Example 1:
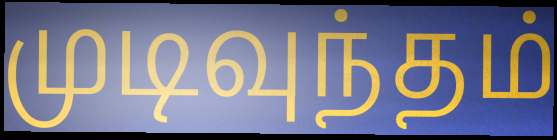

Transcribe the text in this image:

முடிவுந்தம்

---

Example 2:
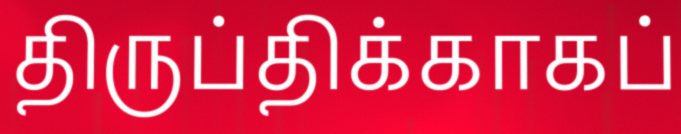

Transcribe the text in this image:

திருப்திக்காகப்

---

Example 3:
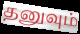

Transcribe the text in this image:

தனுவும்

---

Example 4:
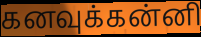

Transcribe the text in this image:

கனவுக்கன்னி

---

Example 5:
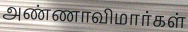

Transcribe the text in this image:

அண்ணாவிமார்கள்